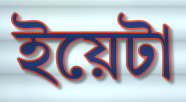
ইয়েটা